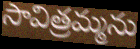
సావిత్రమ్మను